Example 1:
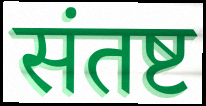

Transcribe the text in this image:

संतष्ट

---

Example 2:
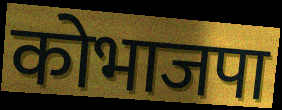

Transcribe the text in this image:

कोभाजपा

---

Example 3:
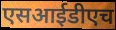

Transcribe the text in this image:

एसआईडीएच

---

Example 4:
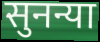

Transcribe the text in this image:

सुनन्या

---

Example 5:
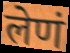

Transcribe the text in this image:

लेणं